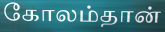
கோலம்தான்